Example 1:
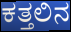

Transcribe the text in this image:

ಕತ್ತಲಿನ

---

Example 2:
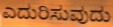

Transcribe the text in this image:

ಎದುರಿಸುವುದು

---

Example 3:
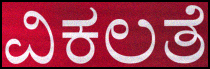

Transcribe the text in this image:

ವಿಕಲತೆ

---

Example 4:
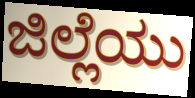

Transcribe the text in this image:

ಜಿಲ್ಲೆಯು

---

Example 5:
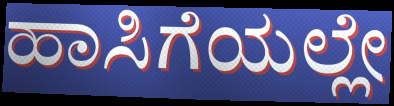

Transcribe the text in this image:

ಹಾಸಿಗೆಯಲ್ಲೇ